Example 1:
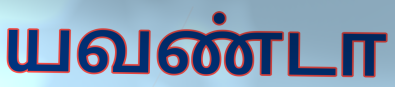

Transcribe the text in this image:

யவண்டா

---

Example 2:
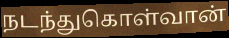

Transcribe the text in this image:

நடந்துகொள்வான்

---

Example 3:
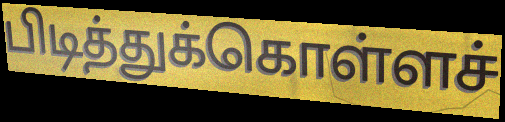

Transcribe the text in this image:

பிடித்துக்கொள்ளச்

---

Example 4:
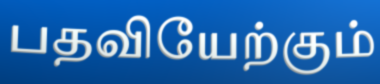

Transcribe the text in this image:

பதவியேற்கும்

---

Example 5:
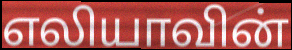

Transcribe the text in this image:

எலியாவின்